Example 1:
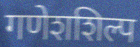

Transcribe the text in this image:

गणेशशिल्प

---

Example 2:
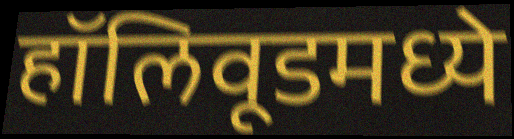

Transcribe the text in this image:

हॉलिवूडमध्ये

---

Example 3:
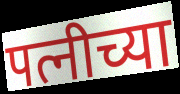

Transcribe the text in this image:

पत्नीच्या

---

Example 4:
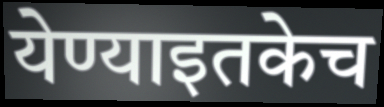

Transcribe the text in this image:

येण्याइतकेच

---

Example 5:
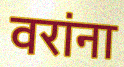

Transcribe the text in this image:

वरांना